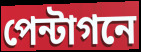
পেন্টাগনে